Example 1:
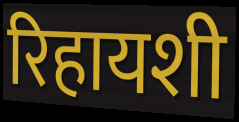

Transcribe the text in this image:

रिहायशी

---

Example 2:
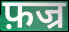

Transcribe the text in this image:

फ़ज्र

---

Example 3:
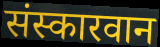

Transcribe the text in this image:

संस्कारवान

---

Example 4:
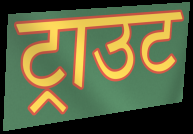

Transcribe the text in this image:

ट्राउट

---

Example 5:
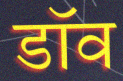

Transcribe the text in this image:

डॉव